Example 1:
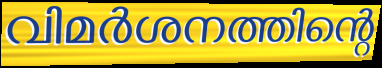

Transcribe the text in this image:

വിമർശനത്തിന്റെ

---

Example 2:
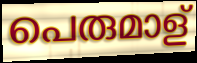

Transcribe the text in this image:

പെരുമാള്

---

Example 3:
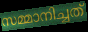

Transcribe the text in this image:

സമ്മാനിച്ചത്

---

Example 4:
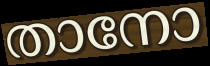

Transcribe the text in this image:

താനോ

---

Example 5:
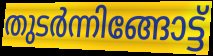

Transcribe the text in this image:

തുടർന്നിങ്ങോട്ട്